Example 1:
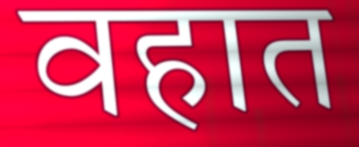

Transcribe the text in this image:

वहात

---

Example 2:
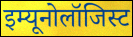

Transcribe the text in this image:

इम्यूनोलॉजिस्ट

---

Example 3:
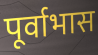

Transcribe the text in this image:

पूर्वाभास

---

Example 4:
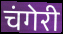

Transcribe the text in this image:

चंगेरी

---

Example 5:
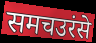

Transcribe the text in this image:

समचउरंसे